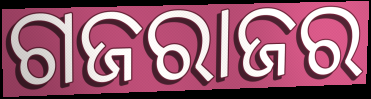
ଗଜରାଜର